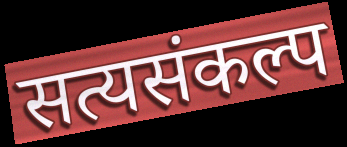
सत्यसंकल्प